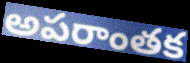
అపరాంతక